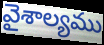
వైశాల్యము